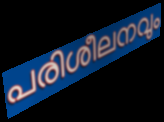
പരിശീലനവും